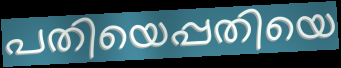
പതിയെപ്പതിയെ